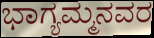
ಭಾಗ್ಯಮ್ಮನವರ